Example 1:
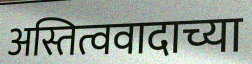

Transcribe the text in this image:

अस्तित्ववादाच्या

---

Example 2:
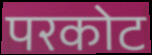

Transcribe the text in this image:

परकोट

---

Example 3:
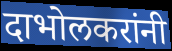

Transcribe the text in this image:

दाभोलकरांनी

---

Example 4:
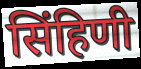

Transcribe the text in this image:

सिंहिणी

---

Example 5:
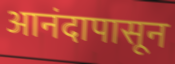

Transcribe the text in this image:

आनंदापासून